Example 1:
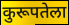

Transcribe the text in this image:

कुरूपतेला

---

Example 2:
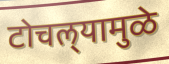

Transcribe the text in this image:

टोचल्यामुळे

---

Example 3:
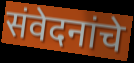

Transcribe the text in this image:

संवेदनांचे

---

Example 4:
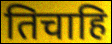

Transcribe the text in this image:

तिचाहि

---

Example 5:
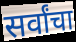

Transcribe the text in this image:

सर्वांचा